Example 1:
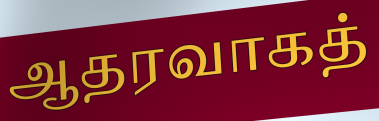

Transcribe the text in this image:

ஆதரவாகத்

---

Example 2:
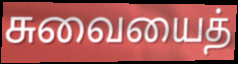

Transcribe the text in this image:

சுவையைத்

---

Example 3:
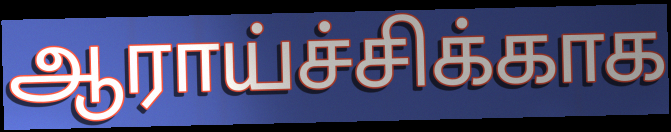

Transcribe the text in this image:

ஆராய்ச்சிக்காக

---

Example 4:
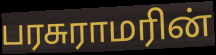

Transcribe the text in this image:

பரசுராமரின்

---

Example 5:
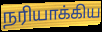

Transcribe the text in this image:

நரியாக்கிய